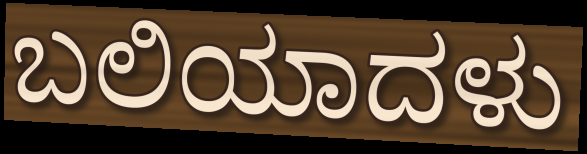
ಬಲಿಯಾದಳು